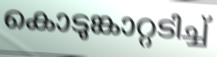
കൊടുങ്കാറ്റടിച്ച്